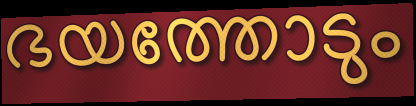
ഭയത്തോടും